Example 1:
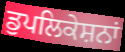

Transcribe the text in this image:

ਡੁਪਲਿਕੇਸ਼ਨਾਂ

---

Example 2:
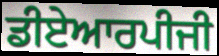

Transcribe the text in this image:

ਡੀਏਆਰਪੀਜੀ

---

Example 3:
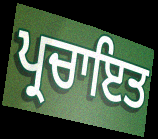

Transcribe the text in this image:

ਪ੍ਰਚਾਇਤ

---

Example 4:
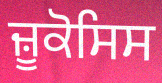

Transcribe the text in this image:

ਜ਼ੂਕੋਸਿਸ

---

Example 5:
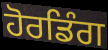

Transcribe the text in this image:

ਹੋਰਡਿੰਗ